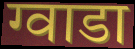
ग्वाडा